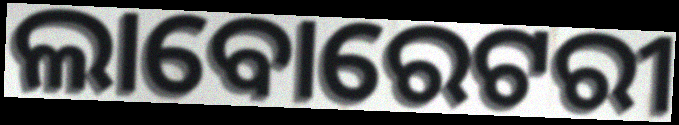
ଲାବୋରେଟରୀ